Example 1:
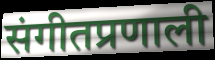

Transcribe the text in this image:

संगीतप्रणाली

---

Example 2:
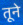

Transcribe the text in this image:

तूने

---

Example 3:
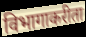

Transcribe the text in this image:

विभागाकरीता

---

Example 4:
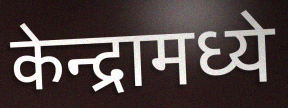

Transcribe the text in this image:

केन्द्रामध्ये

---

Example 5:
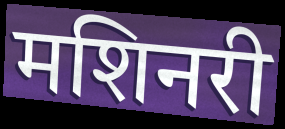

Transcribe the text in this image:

मशिनरी